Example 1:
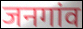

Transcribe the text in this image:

जनगांव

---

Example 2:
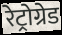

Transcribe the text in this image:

रेट्रोग्रेड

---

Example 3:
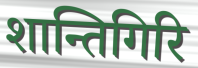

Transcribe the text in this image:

शान्तिगिरि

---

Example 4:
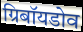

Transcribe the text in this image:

ग्रिबॉयडोव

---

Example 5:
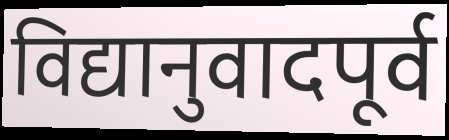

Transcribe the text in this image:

विद्यानुवादपूर्व